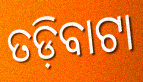
ତଡ଼ିବାଟା